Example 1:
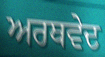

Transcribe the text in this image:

ਅਰਥਵੇਦ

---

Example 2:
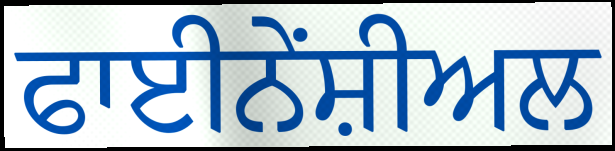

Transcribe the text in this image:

ਫਾਈਨੇਂਸ਼ੀਅਲ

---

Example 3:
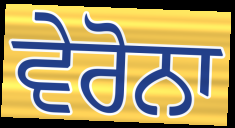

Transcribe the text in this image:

ਵੇਰੋਨਾ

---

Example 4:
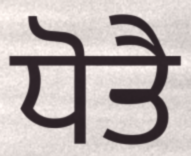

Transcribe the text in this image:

ਧੋਤੈ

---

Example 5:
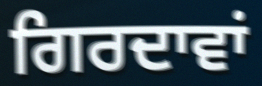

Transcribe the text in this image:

ਗਿਰਦਾਵਾਂ